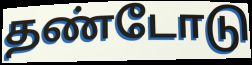
தண்டோடு